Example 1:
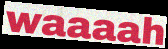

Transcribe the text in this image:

waaaah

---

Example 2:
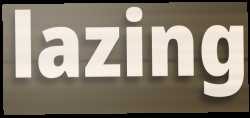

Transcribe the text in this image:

lazing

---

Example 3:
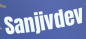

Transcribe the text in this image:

Sanjivdev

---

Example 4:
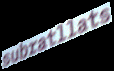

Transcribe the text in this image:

subratllats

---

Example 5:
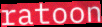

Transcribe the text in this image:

ratoon